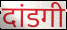
दांडगी